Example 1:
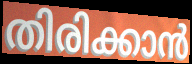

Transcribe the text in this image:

തിരിക്കാൻ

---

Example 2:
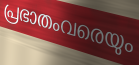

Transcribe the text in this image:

പ്രഭാതംവരെയും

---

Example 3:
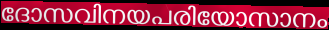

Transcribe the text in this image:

ദോസവിനയപരിയോസാനം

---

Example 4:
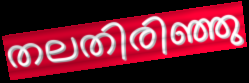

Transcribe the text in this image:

തലതിരിഞ്ഞു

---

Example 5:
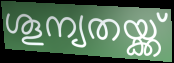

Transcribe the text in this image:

ശൂന്യതയ്ക്ക്